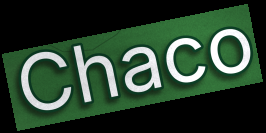
Chaco